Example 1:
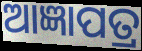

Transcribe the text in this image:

ଆଜ୍ଞାପତ୍ର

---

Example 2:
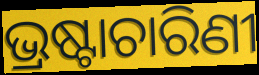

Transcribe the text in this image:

ଭ୍ରଷ୍ଟାଚାରିଣୀ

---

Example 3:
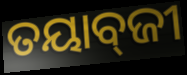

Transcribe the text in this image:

ତୟାବ୍‌ଜୀ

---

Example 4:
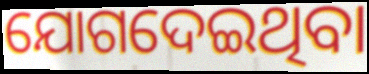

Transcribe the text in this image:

ଯୋଗଦେଇଥିବା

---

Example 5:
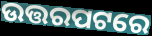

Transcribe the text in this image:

ଉତ୍ତରପଟରେ